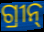
ଗ୍ରୀନ୍